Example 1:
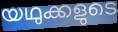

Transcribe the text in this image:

യഥുക്കളുടെ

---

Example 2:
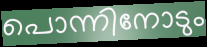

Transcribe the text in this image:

പൊന്നിനോടും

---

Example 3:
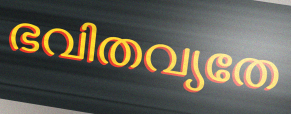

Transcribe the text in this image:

ഭവിതവ്യതേ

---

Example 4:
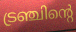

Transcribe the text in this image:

ട്രഞ്ചിന്റെ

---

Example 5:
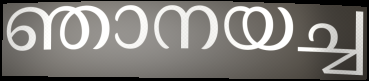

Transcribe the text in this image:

ഞാനയച്ച